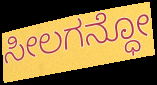
ಸೀಲಗನ್ಧೋ